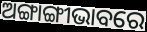
ଅଙ୍ଗାଙ୍ଗୀଭାବରେ